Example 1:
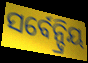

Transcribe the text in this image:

ସର୍ବେନ୍ଦ୍ରିୟ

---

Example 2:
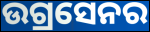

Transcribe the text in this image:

ଉଗ୍ରସେନର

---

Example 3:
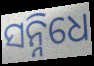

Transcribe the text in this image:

ସନ୍ନିଧେ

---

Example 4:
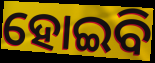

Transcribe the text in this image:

ହୋଇବି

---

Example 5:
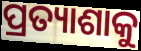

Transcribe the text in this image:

ପ୍ରତ୍ୟାଶାକୁ